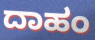
ದಾಹಂ